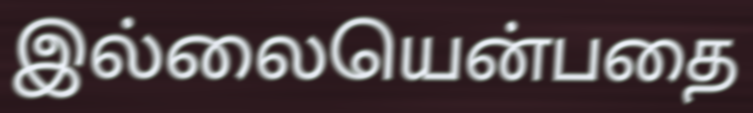
இல்லையென்பதை